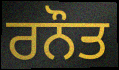
ਰਨੌਤ